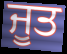
ਜੂਤ